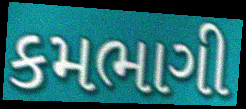
કમભાગી